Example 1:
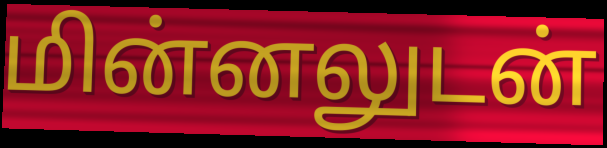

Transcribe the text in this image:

மின்னலுடன்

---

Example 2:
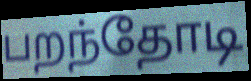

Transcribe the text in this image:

பறந்தோடி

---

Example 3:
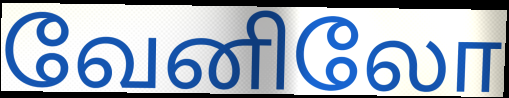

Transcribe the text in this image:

வேனிலோ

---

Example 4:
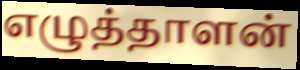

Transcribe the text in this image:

எழுத்தாளன்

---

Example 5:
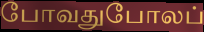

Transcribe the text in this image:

போவதுபோலப்